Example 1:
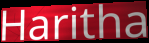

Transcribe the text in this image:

Haritha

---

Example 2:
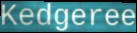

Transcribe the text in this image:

Kedgeree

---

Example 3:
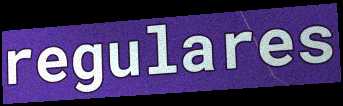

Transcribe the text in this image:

regulares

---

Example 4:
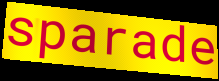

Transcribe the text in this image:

sparade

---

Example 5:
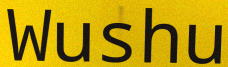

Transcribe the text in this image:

Wushu